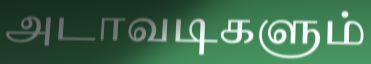
அடாவடிகளும்